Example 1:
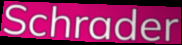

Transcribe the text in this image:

Schrader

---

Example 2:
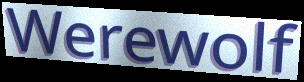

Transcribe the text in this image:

Werewolf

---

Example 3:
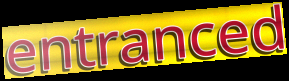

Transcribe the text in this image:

entranced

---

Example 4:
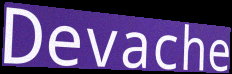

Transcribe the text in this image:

Devache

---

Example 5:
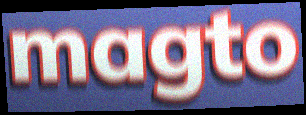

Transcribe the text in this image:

magto